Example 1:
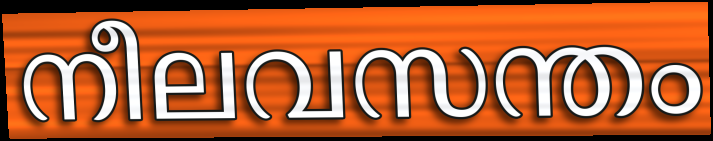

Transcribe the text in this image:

നീലവസന്തം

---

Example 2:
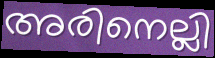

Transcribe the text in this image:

അരിനെല്ലി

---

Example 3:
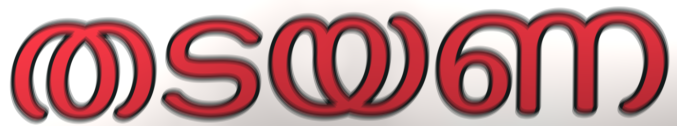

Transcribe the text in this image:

തടയണ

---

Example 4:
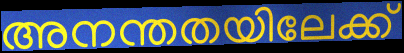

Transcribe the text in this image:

അനന്തതയിലേക്ക്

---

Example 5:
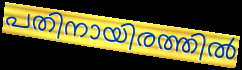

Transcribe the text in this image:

പതിനായിരത്തിൽ